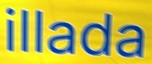
illada